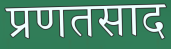
प्रणतसाद